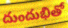
దుందుభితో